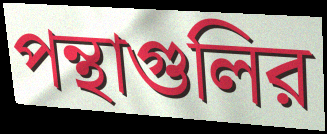
পন্থাগুলির